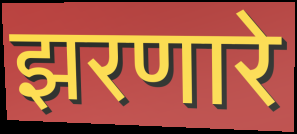
झरणारे